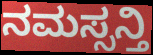
ನಮಸ್ಸನ್ತಿ